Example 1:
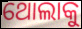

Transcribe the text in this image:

ଥୋଲାକୁ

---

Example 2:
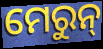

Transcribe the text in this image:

ମେରୁନ୍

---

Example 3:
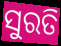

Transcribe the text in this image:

ସୁରତି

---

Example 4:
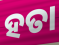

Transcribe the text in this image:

ହତା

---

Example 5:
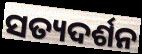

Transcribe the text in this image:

ସତ୍ୟଦର୍ଶନ